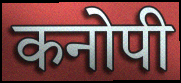
कनोपी